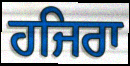
ਹਜਿਰਾ